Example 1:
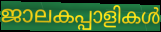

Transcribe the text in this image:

ജാലകപ്പാളികൾ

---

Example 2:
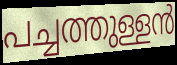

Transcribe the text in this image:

പച്ചത്തുള്ളൻ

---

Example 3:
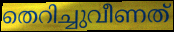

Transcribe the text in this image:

തെറിച്ചുവീണത്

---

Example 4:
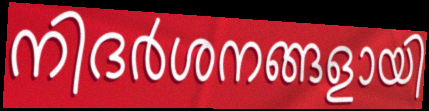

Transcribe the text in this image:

നിദർശനങ്ങളായി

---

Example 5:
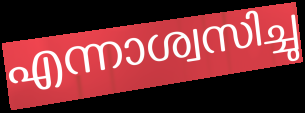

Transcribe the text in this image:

എന്നാശ്വസിച്ചു